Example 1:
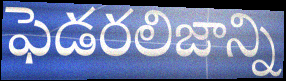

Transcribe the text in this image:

ఫెడరలిజాన్ని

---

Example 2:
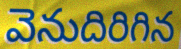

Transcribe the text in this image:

వెనుదిరిగిన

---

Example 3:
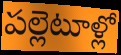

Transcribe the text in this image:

పల్లెటూళ్లో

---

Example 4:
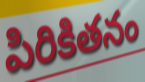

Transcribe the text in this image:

పిరికితనం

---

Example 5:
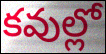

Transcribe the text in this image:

కవుల్లో